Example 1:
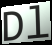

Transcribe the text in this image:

Dl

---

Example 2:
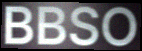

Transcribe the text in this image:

BBSO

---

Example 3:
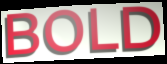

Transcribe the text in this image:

BOLD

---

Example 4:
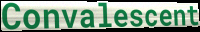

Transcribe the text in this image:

Convalescent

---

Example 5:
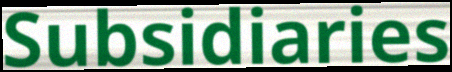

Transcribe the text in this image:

Subsidiaries